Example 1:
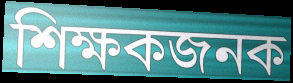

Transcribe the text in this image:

শিক্ষকজনক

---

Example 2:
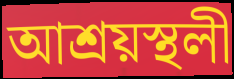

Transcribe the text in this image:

আশ্ৰয়স্থলী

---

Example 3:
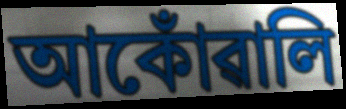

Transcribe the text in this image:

আকোঁৱালি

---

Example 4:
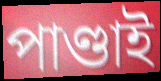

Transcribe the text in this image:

পাণ্ডাই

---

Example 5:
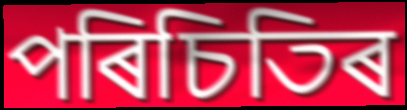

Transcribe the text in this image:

পৰিচিতিৰ